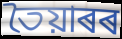
তৈয়াৰৰ